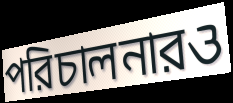
পরিচালনারও